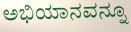
ಅಭಿಯಾನವನ್ನೂ